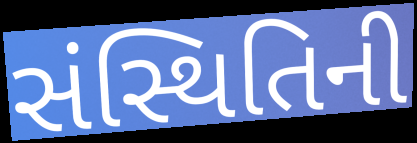
સંસ્થિતિની